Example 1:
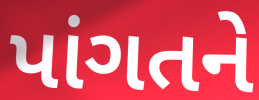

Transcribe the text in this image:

પાંગતને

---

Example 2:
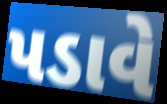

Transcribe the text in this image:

પડાવે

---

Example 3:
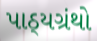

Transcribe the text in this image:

પાઠ્યગ્રંથો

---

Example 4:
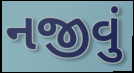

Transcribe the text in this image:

નજીવું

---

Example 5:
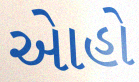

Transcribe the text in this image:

એાહો